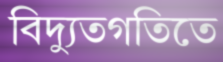
বিদ্যুতগতিতে